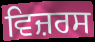
ਵਿਜ਼ਰਸ